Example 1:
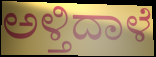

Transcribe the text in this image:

ಅಳ್ತಿದಾಳೆ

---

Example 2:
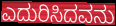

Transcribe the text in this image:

ಎದುರಿಸಿದವನು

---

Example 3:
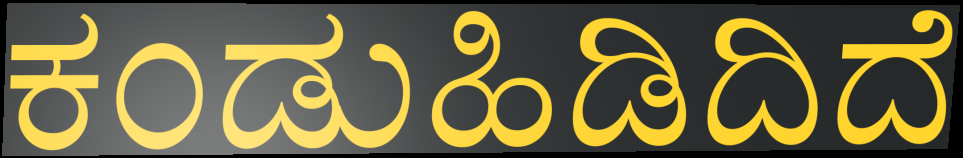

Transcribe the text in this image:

ಕಂಡುಹಿಡಿದಿದೆ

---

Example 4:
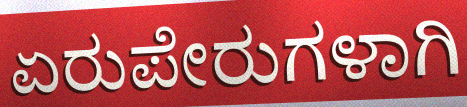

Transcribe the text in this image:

ಏರುಪೇರುಗಳಾಗಿ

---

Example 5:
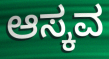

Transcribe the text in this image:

ಆಸ್ಕವ